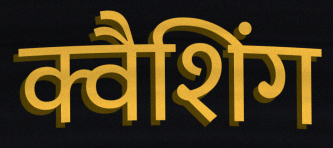
क्वैशिंग